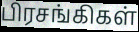
பிரசங்கிகள்